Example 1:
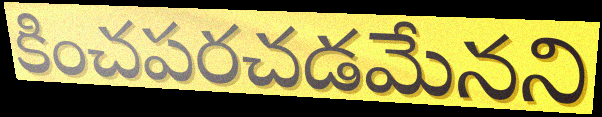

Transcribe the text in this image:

కించపరచడమేనని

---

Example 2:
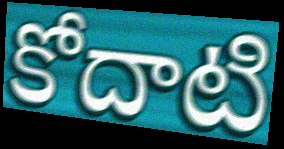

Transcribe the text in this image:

కోదాటి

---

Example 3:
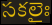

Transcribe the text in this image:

సకలైః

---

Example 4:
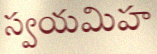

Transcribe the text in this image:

స్వయమిహ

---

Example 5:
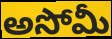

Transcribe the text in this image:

అసోమీ